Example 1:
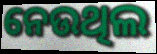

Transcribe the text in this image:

ନେଉଥିଲ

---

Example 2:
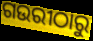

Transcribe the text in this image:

ଗଉରୀଠାରୁ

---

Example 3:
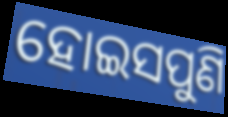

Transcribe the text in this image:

ହୋଇସପୁଣି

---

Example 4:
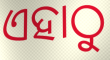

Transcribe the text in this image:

ଏହାଠୁ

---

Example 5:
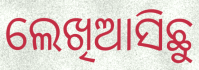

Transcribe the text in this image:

ଲେଖିଆସିଛୁ